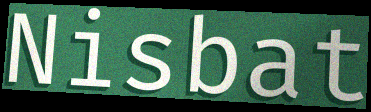
Nisbat